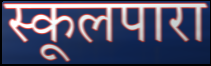
स्कूलपारा